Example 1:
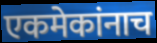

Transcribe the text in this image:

एकमेकांनाच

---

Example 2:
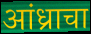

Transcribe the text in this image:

आंध्राचा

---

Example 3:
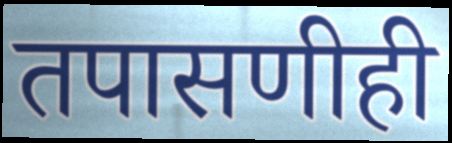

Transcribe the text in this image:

तपासणीही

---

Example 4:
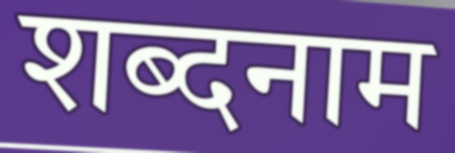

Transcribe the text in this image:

शब्दनाम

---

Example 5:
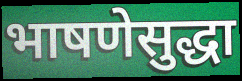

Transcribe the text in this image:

भाषणेसुद्धा